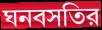
ঘনবসতির